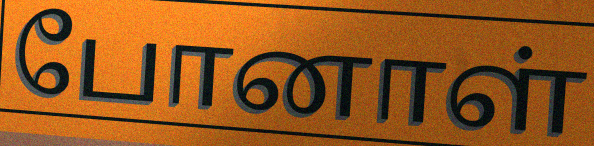
போனாள்